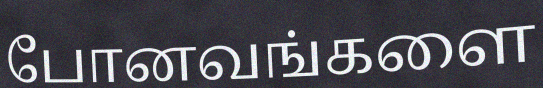
போனவங்களை